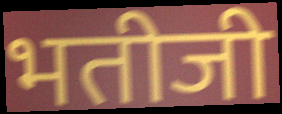
भतीजी